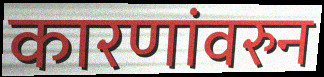
कारणांवरुन